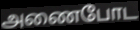
அணைபோட